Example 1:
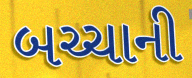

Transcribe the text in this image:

બચ્ચાની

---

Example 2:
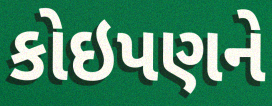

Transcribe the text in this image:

કોઇપણને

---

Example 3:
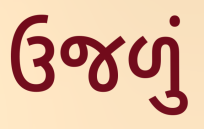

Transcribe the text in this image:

ઉજળું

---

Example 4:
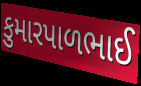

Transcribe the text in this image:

કુમારપાળભાઈ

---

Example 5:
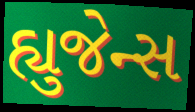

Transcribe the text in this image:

હ્યુજેન્સ